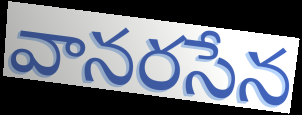
వానరసేన